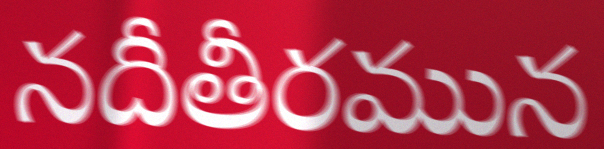
నదీతీరమున